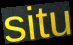
situ